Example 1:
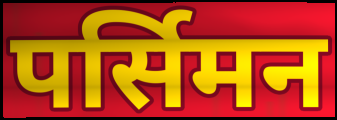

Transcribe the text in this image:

पर्सिमन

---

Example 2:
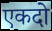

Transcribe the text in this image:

एकदो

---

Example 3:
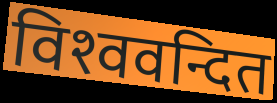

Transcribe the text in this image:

विश्ववन्दित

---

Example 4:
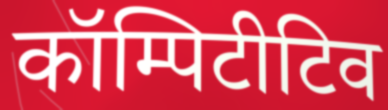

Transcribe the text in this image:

कॉम्पिटीटिव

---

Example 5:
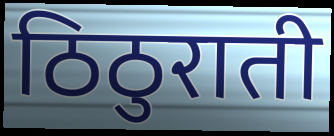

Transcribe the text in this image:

ठिठुराती